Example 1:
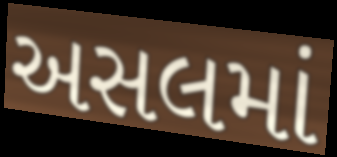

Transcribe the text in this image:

અસલમાં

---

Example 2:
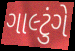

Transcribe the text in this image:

ગાલ્ટુંગે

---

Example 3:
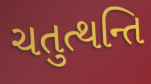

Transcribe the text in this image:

ચતુત્થન્તિ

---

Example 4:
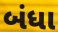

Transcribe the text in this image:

બંધા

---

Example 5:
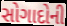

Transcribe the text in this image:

સોગાદોની